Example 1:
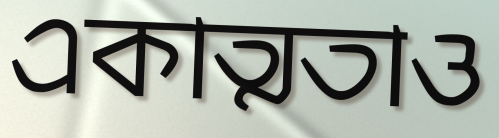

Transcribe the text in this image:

একাত্মতাও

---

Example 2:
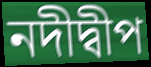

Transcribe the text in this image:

নদীদ্বীপ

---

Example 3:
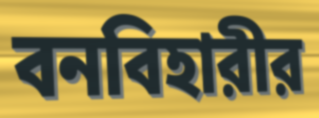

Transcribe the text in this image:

বনবিহারীর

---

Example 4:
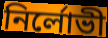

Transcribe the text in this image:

নির্লোভী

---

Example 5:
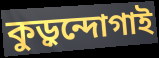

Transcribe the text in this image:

কুড়ুন্দোগাই